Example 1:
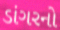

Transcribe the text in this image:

ડાંગરનો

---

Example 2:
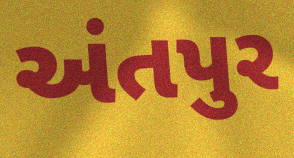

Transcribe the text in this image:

અંતપુર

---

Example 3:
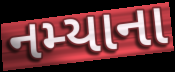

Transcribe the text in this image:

નમ્યાના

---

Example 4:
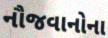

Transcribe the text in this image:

નૌજવાનોના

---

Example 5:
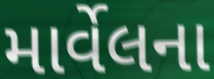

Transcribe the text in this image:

માર્વેલના